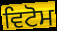
ਵਿਟੋਮ